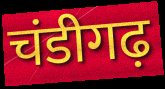
चंडीगढ़